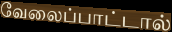
வேலைப்பாட்டால்